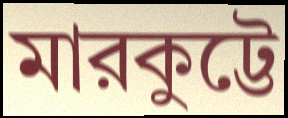
মারকুট্টে